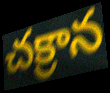
చక్రాన